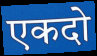
एकदो